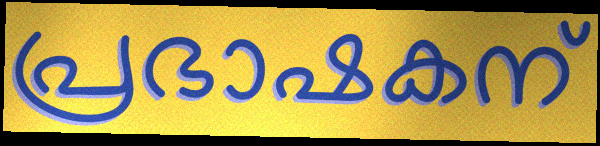
പ്രഭാഷകന്